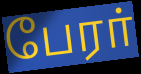
பேரர்